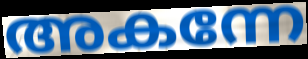
അകന്നേ